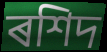
ৰশিদ